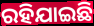
ରହିଯାଇଛି